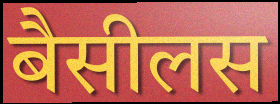
बैसीलस